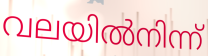
വലയിൽനിന്ന്